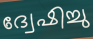
ദ്വേഷിച്ചു